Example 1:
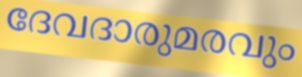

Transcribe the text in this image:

ദേവദാരുമരവും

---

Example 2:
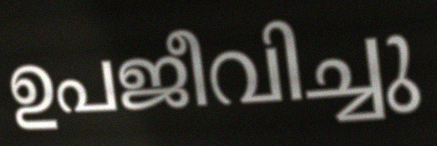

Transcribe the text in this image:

ഉപജീവിച്ചു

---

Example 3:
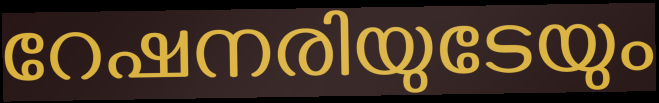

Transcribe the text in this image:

റേഷനരിയുടേയും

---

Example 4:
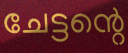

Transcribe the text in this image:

ചേട്ടന്റെ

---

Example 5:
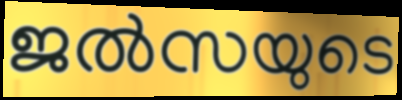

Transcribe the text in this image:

ജൽസയുടെ